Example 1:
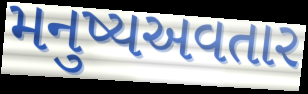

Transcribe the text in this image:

મનુષ્યઅવતાર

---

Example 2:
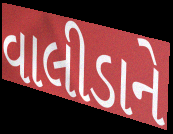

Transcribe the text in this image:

વાલીડાને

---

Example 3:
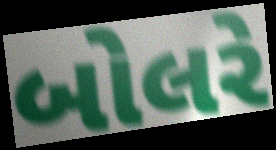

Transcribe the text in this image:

બોલરે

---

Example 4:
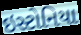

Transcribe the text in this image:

ઇસ્ટોનિયા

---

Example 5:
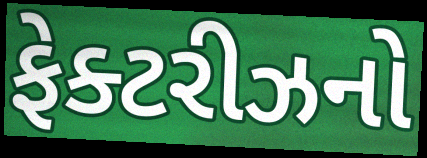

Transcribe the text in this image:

ફેક્ટરીઝનો